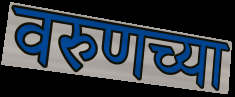
वरुणच्या